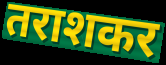
तराशकर